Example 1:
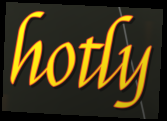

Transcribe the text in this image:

hotly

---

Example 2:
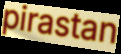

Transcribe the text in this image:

pirastan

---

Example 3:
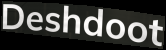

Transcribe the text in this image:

Deshdoot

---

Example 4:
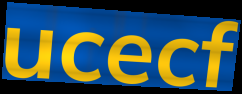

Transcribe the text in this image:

ucecf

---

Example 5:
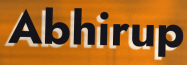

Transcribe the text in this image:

Abhirup